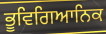
ਭੂਵਿਗਿਆਨਿਕ